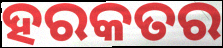
ହରକତର